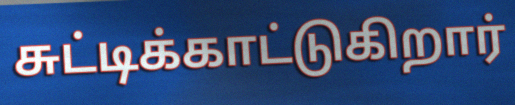
சுட்டிக்காட்டுகிறார்